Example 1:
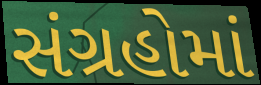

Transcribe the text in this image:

સંગ્રહોમાં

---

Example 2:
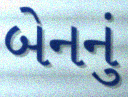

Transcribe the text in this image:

બેનનું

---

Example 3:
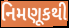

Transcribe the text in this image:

નિમણૂકથી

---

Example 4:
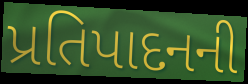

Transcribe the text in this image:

પ્રતિપાદનની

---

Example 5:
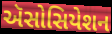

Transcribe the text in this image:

ઍસોસિયેશન